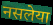
नसलेया